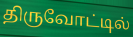
திருவோட்டில்